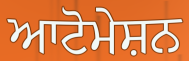
ਆਟੋਮੇਸ਼ਨ